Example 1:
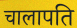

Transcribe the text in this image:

चालापति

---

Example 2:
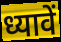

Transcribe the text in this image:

ध्यावें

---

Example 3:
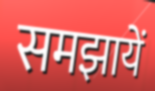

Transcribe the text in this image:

समझायें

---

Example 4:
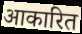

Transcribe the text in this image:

आकारित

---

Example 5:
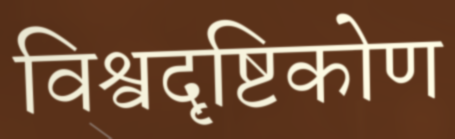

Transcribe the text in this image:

विश्वदृष्टिकोण